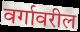
वर्गावरील